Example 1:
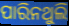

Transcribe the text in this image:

ପାରିନଥୁଲି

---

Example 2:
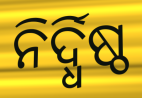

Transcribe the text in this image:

ନିର୍ଦ୍ଧିଷ୍ଠ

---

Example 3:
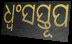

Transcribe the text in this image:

ଧ୍ୱଂସସ୍ତୂପ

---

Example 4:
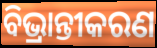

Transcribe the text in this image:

ବିଭ୍ରାନ୍ତୀକରଣ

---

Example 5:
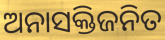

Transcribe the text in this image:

ଅନାସକ୍ତିଜନିତ